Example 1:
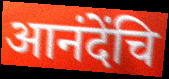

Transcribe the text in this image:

आनंदेंचि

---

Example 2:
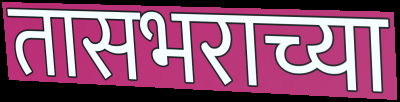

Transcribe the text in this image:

तासभराच्या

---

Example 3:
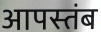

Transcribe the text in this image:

आपस्तंब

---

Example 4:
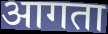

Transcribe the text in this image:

आगता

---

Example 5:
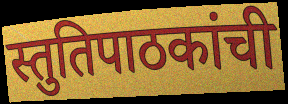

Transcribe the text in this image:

स्तुतिपाठकांची